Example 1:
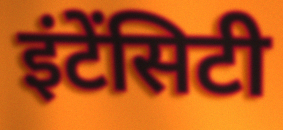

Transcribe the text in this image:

इंटेंसिटी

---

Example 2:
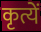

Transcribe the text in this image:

कृत्यें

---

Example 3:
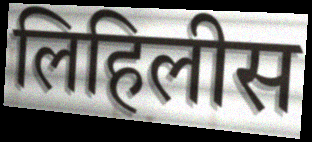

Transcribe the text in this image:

लिहिलीस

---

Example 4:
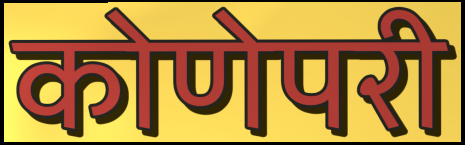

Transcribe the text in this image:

कोणेपरी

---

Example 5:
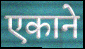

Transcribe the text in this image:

एकाने